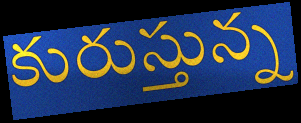
కురుస్తున్న